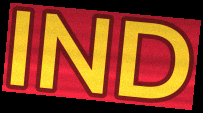
IND